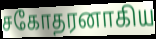
சகோதரனாகிய